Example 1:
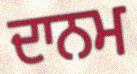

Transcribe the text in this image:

ਦਾਨਮ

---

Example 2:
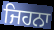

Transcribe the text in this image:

ਜਿਹਨਾ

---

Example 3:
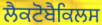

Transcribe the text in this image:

ਲੈਕਟੋਬੈਕਿਲਸ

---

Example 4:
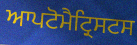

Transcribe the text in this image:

ਆਪਟੋਮੈਟ੍ਰਿਸਟਸ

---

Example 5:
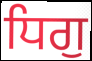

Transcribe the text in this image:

ਧਿਗੁ